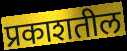
प्रकाशतील